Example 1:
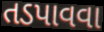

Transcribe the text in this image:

તડપાવવા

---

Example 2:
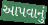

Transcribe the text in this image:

આપવાનું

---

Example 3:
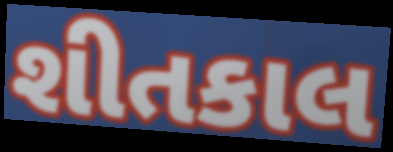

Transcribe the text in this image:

શીતકાલ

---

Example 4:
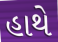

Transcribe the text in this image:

હાથે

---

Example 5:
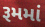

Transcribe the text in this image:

રૂમમાં